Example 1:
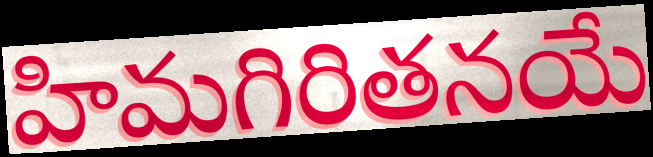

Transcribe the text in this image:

హిమగిరితనయే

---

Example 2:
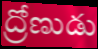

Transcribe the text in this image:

ద్రోణుడు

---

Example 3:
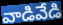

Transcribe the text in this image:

వాడివేడి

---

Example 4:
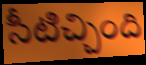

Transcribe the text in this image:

సీటిచ్చింది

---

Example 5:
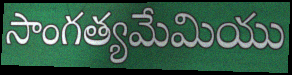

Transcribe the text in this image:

సాంగత్యమేమియు